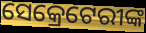
ସେକ୍ରେଟେରୀଙ୍କ